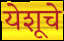
येशूचे